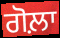
ਗੋਲ਼ਾ